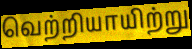
வெற்றியாயிற்று